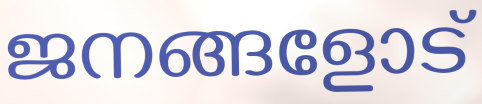
ജനങ്ങളോട്